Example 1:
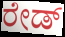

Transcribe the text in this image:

ರೇಡ್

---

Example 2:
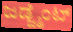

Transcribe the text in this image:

ಜಡ್ಜ್ಮೆಂಟ್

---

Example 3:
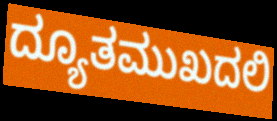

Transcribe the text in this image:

ದ್ಯೂತಮುಖದಲಿ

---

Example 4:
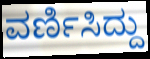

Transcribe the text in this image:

ವರ್ಣಿಸಿದ್ದು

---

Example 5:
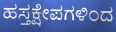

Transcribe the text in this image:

ಹಸ್ತಕ್ಷೇಪಗಳಿಂದ